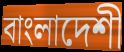
বাংলাদেশী